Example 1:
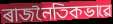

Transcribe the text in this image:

ৰাজনৈতিকভাৱে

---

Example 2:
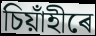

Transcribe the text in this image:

চিয়াঁহীৰে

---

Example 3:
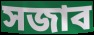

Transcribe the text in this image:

সজাব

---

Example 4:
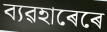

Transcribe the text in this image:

ব্যৱহাৰেৰে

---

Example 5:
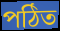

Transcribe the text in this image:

পঠিত